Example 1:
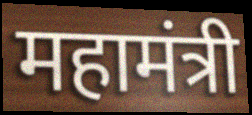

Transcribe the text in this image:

महामंत्री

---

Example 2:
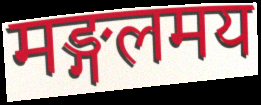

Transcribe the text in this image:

मङ्गलमय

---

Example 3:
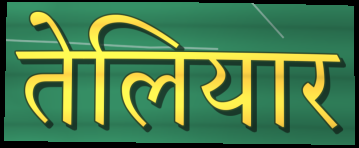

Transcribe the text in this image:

तेलियार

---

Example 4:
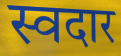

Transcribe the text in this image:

स्वदार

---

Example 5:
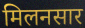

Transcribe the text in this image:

मिलनसार